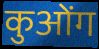
कुओंग